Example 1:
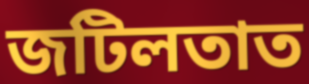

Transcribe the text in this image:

জটিলতাত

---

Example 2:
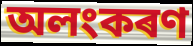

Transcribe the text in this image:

অলংকৰণ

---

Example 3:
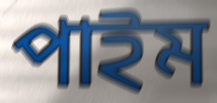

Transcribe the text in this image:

পাইম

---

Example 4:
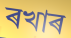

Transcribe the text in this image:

ৰখাৰ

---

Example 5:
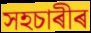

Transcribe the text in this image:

সহচাৰীৰ